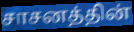
சாசனத்தின்